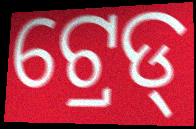
ଟ୍ରେଡ୍